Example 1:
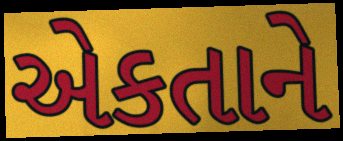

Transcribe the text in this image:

એકતાને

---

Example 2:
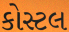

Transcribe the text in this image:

કોસ્ટલ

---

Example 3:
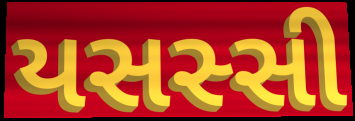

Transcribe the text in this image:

યસસ્સી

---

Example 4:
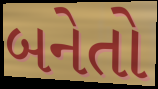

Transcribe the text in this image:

બનેતો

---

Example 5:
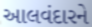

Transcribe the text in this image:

આલવંદારને